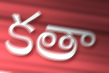
కతా